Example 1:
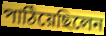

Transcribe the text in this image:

পাঠিয়েছিলেন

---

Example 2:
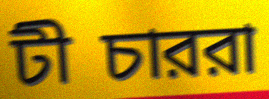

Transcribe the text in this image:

টীচাররা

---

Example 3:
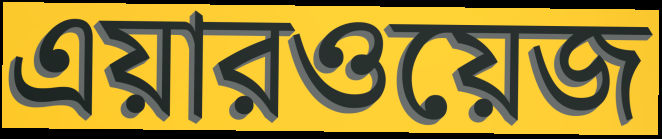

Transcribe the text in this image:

এয়ারওয়েজ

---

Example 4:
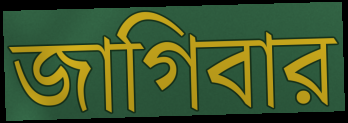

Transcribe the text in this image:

জাগিবার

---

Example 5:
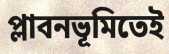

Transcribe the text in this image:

প্লাবনভূমিতেই